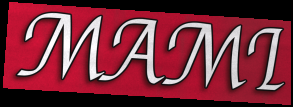
MAMI